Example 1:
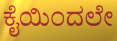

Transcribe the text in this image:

ಕೈಯಿಂದಲೇ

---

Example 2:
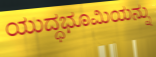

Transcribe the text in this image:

ಯುದ್ಧಭೂಮಿಯನ್ನು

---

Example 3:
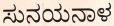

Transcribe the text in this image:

ಸುನಯನಾಳ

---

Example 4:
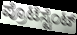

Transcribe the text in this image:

ಪ್ರೊಟೆಸ್ಟೆಂಟ್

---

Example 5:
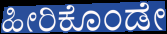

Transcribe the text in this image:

ಹೀರಿಕೊಂಡೇ